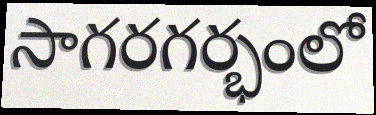
సాగరగర్భంలో